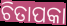
ଚିତାପକା